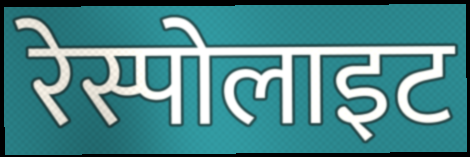
रेस्पोलाइट